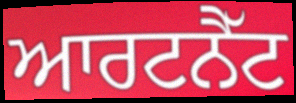
ਆਰਟਨੈੱਟ